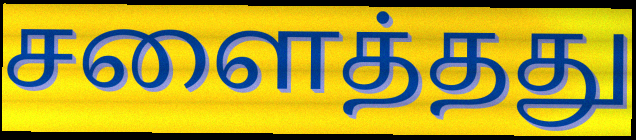
சளைத்தது